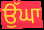
ਉੱਘਾ